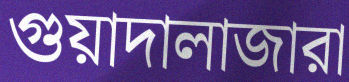
গুয়াদালাজারা